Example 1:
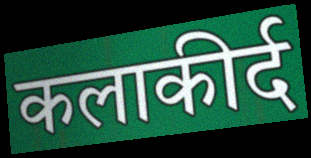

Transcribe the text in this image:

कलाकीर्द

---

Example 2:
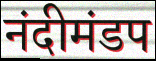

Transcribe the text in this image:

नंदीमंडप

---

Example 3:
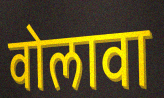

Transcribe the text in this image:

वोलावा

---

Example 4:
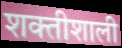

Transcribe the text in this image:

शक्‍तीशाली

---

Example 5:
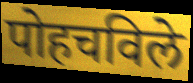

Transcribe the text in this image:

पोहचविले